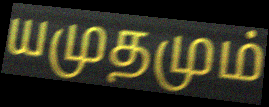
யமுதமும்